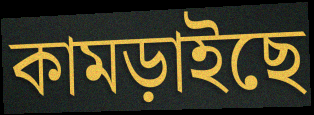
কামড়াইছে